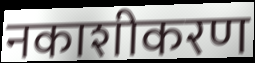
नकाशीकरण